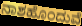
ನಾಶಹೊಂದುವೆ